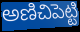
అణిచిపెట్టి